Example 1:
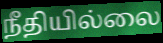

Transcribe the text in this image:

நீதியில்லை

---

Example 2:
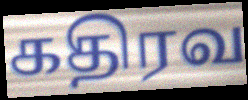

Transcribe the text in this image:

கதிரவ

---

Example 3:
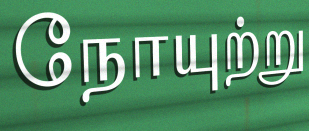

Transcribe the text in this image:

நோயுற்று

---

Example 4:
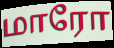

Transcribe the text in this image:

மாரோ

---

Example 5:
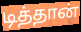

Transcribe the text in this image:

டித்தான்